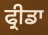
ਫ੍ਰੀਡਾ